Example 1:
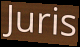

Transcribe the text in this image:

Juris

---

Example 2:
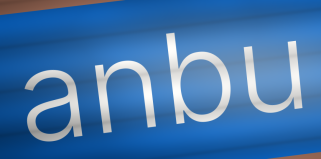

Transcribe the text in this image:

anbu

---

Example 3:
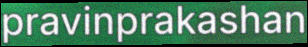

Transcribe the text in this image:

pravinprakashan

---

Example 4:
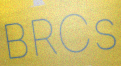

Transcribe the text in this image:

BRCs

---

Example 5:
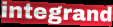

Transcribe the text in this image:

integrand